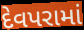
દેવપરામાં